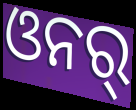
ଓନର୍